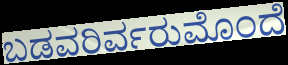
ಬಡವರಿರ್ವರುಮೊಂದೆ